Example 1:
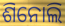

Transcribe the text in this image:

ଶିନୋଲି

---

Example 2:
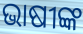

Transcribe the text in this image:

ଭାଷୀଙ୍କ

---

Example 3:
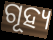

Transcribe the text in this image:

ଗୂହ୍ୟ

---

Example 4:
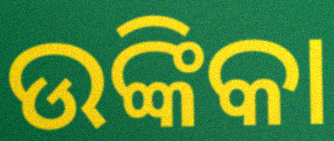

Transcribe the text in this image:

ଉଙ୍କିକା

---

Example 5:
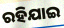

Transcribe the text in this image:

ରହିଯାଇ